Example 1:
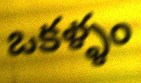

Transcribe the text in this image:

ఒకళ్ళం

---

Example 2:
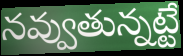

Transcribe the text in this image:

నవ్వుతున్నట్టే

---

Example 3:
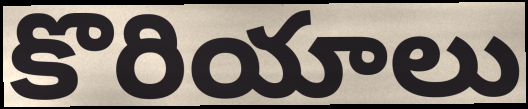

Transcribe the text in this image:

కొరియాలు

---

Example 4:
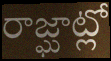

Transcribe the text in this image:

రాజ్ఘాట్లో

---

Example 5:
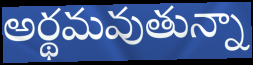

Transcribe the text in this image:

అర్థమవుతున్నా